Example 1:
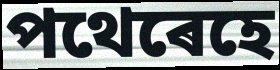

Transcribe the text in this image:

পথেৰেহে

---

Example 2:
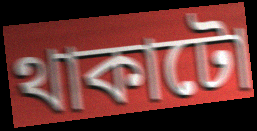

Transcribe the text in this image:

থাকাটো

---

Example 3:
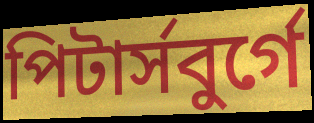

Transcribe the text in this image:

পিটাৰ্সবুৰ্গে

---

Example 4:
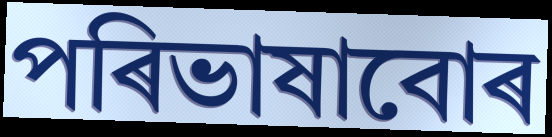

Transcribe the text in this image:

পৰিভাষাবোৰ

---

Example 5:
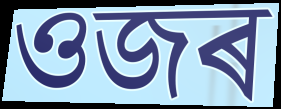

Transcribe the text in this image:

ওজৰ